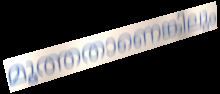
മൂത്തതാണെങ്കിലും